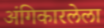
अंगिकारलेला